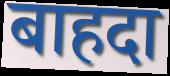
बाहदा